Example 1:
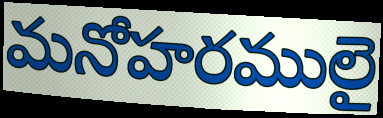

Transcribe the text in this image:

మనోహరములై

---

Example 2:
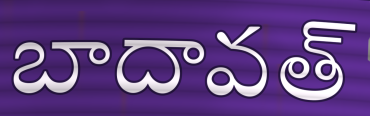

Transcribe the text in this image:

బాదావత్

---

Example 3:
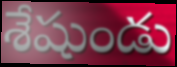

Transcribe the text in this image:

శేషుండు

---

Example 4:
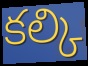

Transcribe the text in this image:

కల్కి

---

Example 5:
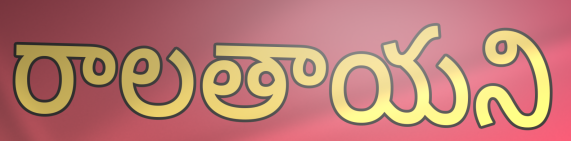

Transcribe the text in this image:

రాలతాయని